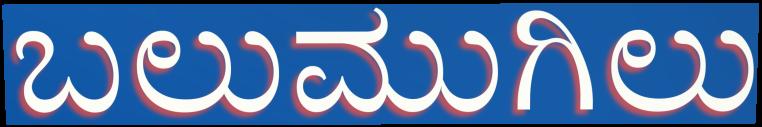
ಬಲುಮುಗಿಲು